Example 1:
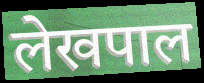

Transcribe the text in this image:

लेखपाल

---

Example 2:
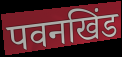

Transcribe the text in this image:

पवनखिंड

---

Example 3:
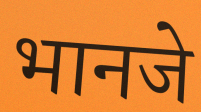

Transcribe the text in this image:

भानजे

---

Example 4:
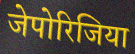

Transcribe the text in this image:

जेपोरिजिया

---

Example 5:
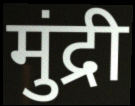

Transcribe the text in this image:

मुंद्री